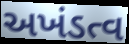
અખંડત્વ